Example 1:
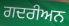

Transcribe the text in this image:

ਗਦਰੀਅਨ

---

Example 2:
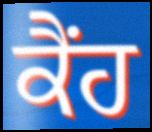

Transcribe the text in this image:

ਕੈਂਹ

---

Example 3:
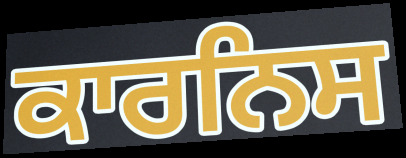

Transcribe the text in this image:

ਕਾਰਨਿਸ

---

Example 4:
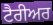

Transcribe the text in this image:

ਟੈਰੀਅਰ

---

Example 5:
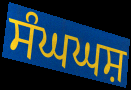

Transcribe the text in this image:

ਸੰਘਘਸ਼